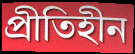
প্রীতিহীন